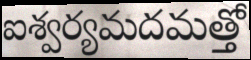
ఐశ్వర్యమదమత్తో